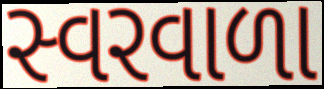
સ્વરવાળા